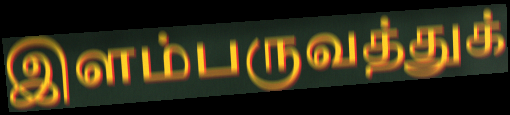
இளம்பருவத்துக்